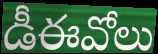
డీఈవోలు